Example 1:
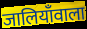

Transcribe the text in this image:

जालियाँवाला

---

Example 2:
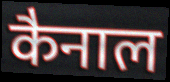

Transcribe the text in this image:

कैनाल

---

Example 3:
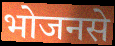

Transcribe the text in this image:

भोजनसे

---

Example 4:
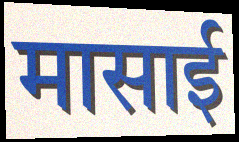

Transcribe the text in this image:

मासाई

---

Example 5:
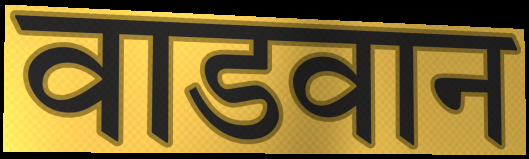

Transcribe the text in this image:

वाडवान